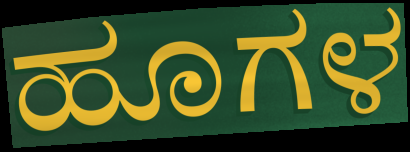
ಹೂಗಳ